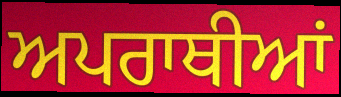
ਅਪਰਾਥੀਆਂ